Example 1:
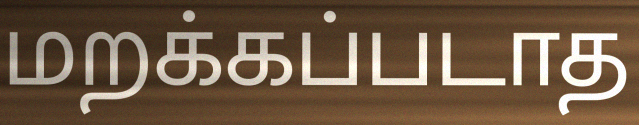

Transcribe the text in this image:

மறக்கப்படாத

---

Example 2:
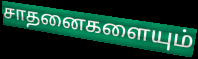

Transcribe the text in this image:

சாதனைகளையும்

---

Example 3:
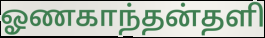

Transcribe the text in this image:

ஓணகாந்தன்தளி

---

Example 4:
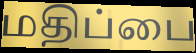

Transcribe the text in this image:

மதிப்பை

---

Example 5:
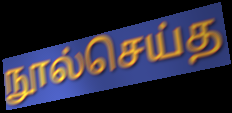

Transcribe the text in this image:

நூல்செய்த